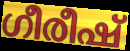
ഗീരീഷ്